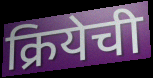
क्रियेची